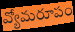
వ్యోమరూపం